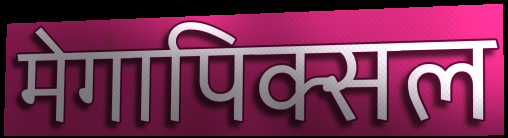
मेगापिक्सल